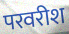
परवरीश